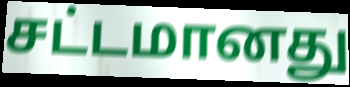
சட்டமானது